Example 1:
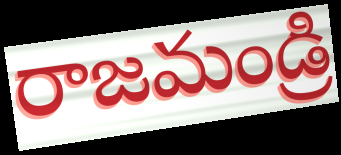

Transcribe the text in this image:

రాజమండ్రి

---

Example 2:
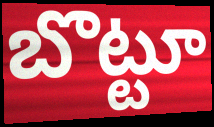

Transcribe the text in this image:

బొట్టూ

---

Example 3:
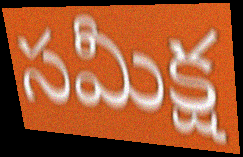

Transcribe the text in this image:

సమీక్ష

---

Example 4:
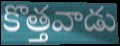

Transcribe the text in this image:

కొత్తవాడు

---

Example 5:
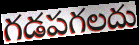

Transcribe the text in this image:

గడపగలదు